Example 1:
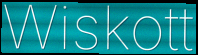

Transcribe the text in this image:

Wiskott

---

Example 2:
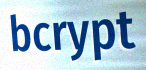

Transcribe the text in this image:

bcrypt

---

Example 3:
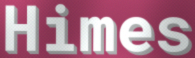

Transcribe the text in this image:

Himes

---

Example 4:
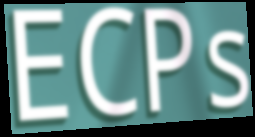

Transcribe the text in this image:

ECPs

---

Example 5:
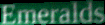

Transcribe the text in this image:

Emeralds